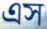
এস